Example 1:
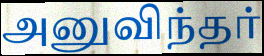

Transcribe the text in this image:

அனுவிந்தர்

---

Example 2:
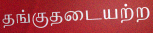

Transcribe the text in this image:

தங்குதடையற்ற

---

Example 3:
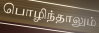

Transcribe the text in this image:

பொழிந்தாலும்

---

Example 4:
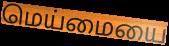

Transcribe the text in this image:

மெய்மையை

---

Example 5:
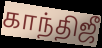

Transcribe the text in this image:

காந்திஜீ